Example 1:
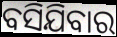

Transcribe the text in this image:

ବସିଯିବାର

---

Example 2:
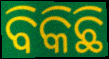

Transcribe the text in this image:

ବିକିଛି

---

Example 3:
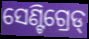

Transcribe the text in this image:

ସେଣ୍ଟିଗ୍ରେଡ୍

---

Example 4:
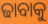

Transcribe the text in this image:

ଢାବାକୁ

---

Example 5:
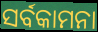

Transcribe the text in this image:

ସର୍ବକାମନା